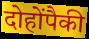
दोहोंपैकी